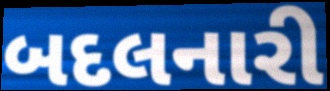
બદલનારી